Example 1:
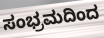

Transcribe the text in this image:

ಸಂಭ್ರಮದಿಂದ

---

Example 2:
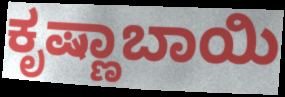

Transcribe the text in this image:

ಕೃಷ್ಣಾಬಾಯಿ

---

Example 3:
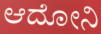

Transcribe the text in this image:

ಆದೋನಿ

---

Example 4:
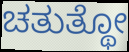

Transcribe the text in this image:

ಚತುತ್ಥೋ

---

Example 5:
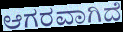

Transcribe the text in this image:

ಆಗರವಾಗಿದೆ